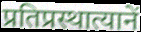
प्रतिप्रस्थात्यानें